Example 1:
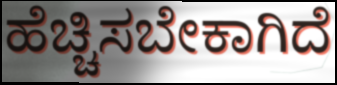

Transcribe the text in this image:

ಹೆಚ್ಚಿಸಬೇಕಾಗಿದೆ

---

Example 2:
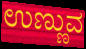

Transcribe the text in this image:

ಉಣ್ಣುವ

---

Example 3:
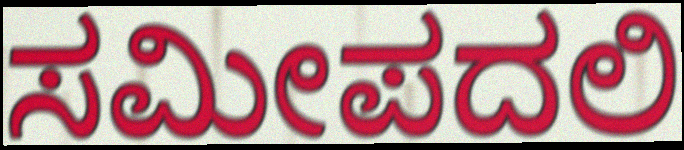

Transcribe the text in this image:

ಸಮೀಪದಲಿ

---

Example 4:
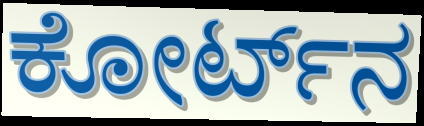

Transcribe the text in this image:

ಕೋರ್ಟ್‌ನ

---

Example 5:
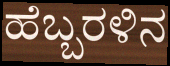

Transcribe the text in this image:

ಹೆಬ್ಬರಳಿನ